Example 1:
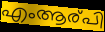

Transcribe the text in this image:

എംആര്പി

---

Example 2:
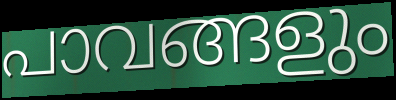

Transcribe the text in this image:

പാവങ്ങളും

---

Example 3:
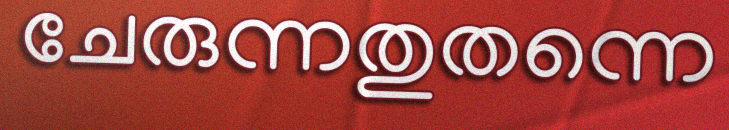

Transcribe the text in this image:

ചേരുന്നതുതന്നെ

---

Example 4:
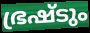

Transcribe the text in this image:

ഭ്രഷ്ടും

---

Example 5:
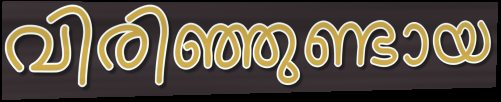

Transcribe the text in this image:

വിരിഞ്ഞുണ്ടായ